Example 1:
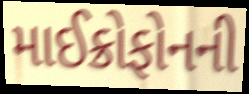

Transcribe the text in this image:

માઈક્રોફોનની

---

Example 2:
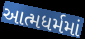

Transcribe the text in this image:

આત્મધર્મમાં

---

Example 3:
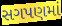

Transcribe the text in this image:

સગપણમાં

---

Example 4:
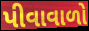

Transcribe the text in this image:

પીવાવાળો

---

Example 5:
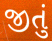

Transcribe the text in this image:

જીતું